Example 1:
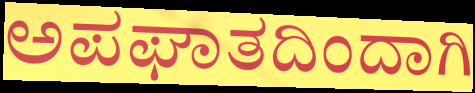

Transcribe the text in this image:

ಅಪಘಾತದಿಂದಾಗಿ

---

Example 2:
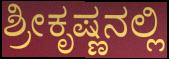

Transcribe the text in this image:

ಶ್ರೀಕೃಷ್ಣನಲ್ಲಿ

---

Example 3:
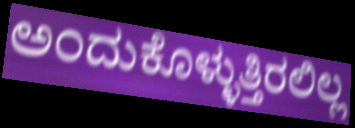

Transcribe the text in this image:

ಅಂದುಕೊಳ್ಳುತ್ತಿರಲಿಲ್ಲ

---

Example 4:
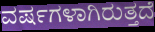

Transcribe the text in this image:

ವರ್ಷಗಳಾಗಿರುತ್ತದೆ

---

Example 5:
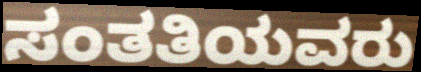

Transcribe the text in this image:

ಸಂತತಿಯವರು